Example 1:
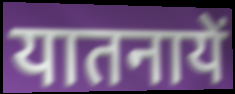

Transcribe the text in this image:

यातनायें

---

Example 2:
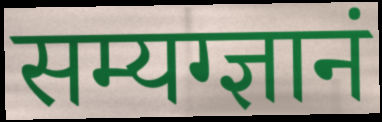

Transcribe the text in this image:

सम्यग्ज्ञानं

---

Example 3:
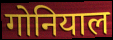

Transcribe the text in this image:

गोनियाल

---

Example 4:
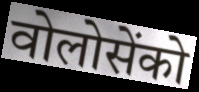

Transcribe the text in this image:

वोलोसेंको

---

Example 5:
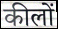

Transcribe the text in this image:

कीलों